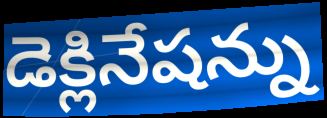
డెక్లినేషన్ను